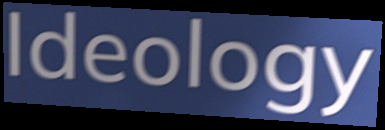
Ideology